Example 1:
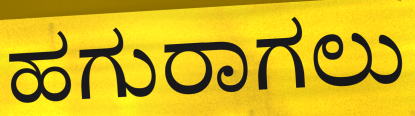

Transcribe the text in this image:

ಹಗುರಾಗಲು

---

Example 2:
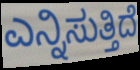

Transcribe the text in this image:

ಎನ್ನಿಸುತ್ತಿದೆ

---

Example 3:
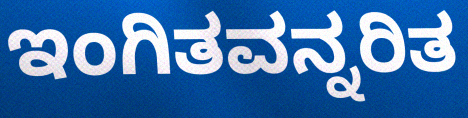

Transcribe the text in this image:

ಇಂಗಿತವನ್ನರಿತ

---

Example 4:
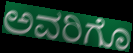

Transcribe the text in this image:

ಅವರಿಗೊ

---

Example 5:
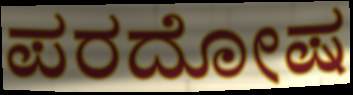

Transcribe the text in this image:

ಪರದೋಷ